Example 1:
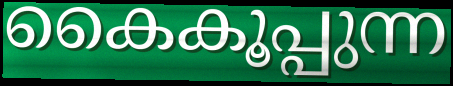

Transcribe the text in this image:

കൈകൂപ്പുന്ന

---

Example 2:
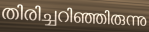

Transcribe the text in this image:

തിരിച്ചറിഞ്ഞിരുന്നു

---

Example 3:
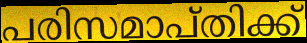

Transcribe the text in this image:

പരിസമാപ്തിക്ക്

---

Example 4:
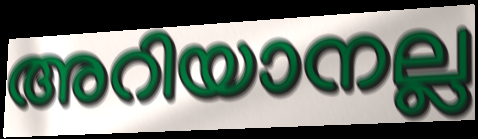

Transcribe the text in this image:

അറിയാനല്ല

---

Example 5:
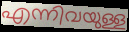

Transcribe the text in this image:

എന്നിവയുള്ള